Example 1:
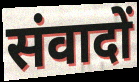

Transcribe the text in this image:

संवादों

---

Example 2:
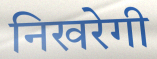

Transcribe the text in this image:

निखरेगी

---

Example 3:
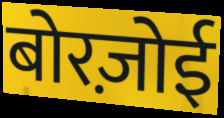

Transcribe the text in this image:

बोरज़ोई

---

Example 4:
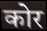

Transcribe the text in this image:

कोर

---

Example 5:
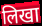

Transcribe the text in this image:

लिखा